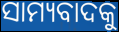
ସାମ୍ୟବାଦକୁ